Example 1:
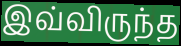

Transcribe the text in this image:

இவ்விருந்த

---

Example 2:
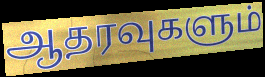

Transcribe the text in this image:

ஆதரவுகளும்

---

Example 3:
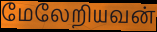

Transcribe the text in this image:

மேலேறியவன்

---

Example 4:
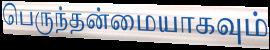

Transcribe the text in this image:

பெருந்தன்மையாகவும்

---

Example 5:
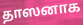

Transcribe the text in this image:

தாஸனாக